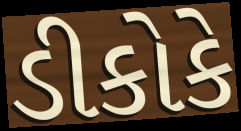
ડીકોકે